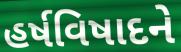
હર્ષવિષાદને